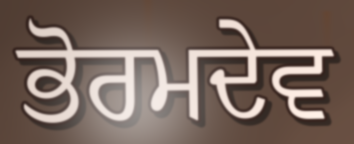
ਭੋਰਮਦੇਵ